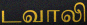
டவாலி